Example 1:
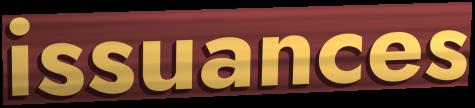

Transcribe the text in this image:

issuances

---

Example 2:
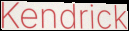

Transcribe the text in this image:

Kendrick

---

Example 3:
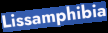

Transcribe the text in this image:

Lissamphibia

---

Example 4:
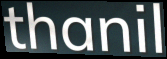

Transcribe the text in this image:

thanil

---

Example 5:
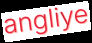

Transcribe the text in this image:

angliye